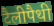
टैलीपैथी